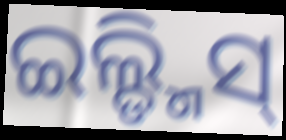
ଇଲ୍ଡ୍ମିସ୍